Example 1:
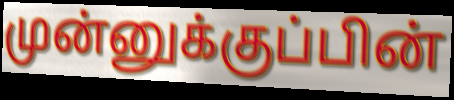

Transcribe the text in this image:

முன்னுக்குப்பின்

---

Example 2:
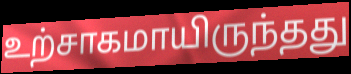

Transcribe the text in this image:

உற்சாகமாயிருந்தது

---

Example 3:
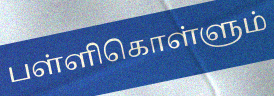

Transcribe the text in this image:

பள்ளிகொள்ளும்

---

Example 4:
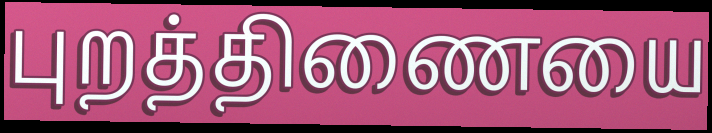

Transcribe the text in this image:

புறத்திணையை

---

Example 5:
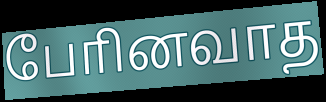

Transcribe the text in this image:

பேரினவாத